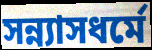
সন্ন্যাসধর্মে